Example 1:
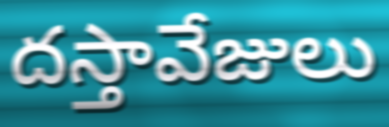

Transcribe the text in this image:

దస్తావేజులు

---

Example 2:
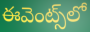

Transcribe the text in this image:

ఈవెంట్స్‌లో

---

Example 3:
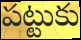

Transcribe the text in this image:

పట్టుకు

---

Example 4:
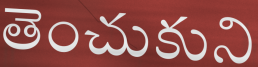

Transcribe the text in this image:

తెంచుకుని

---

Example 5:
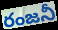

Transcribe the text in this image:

రంజనీ